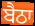
ਬੈਠਾ